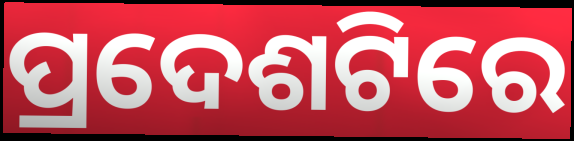
ପ୍ରଦେଶଟିରେ